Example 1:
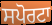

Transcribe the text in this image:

ਸਪੋਰਟਾ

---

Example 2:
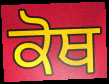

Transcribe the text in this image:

ਕੋਥ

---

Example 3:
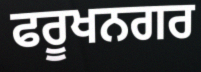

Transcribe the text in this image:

ਫਰੂਖਨਗਰ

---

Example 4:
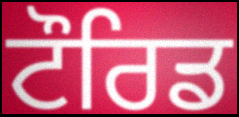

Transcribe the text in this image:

ਟੌਰਿਡ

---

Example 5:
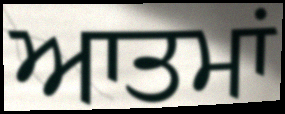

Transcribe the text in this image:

ਆਤਮਾਂ